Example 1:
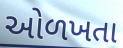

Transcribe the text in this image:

ઓળખતા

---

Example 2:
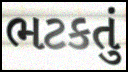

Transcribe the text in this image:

ભટકતું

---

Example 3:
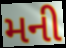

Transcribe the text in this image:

મની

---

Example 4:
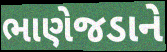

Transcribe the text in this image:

ભાણેજડાને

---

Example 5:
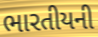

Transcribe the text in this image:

ભારતીયની